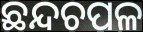
ଛନ୍ଦଚପଳ